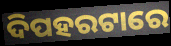
ଦିପହରଟାରେ